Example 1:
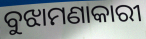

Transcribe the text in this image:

ବୁଝାମଣାକାରୀ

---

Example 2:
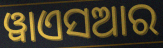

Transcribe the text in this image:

ୱାଏସଆର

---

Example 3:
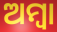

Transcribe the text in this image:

ଅମ୍ବା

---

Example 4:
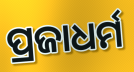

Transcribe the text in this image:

ପ୍ରଜାଧର୍ମ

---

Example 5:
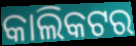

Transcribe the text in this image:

କାଲିକଟର